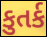
કુતર્ક